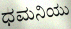
ಧಮನಿಯು